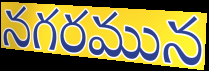
నగరమున